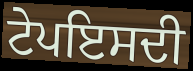
ਟੇਪਇਸਦੀ